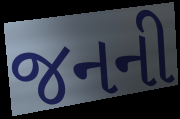
જનની